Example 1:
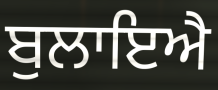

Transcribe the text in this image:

ਬੁਲਾਇਐ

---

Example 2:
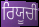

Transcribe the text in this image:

ਰਿਯੂਚੀ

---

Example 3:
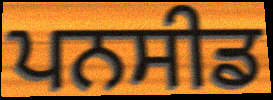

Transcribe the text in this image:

ਪਨਸੀਡ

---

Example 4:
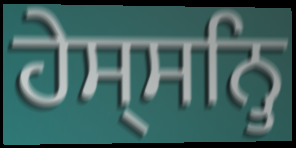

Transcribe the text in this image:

ਹੇਸ੍ਸਨ੍ਤਿ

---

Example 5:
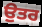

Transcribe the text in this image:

ਉੁਤਰ